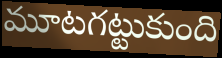
మూటగట్టుకుంది